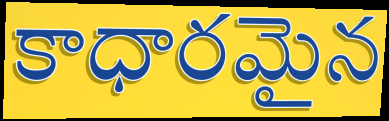
కాధారమైన